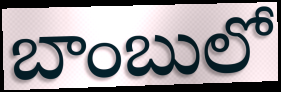
బాంబులో